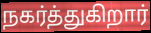
நகர்த்துகிறார்